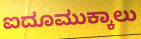
ಐದೂಮುಕ್ಕಾಲು